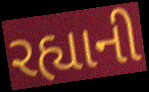
રહ્યાની